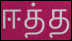
ஈத்த